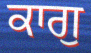
ਕਾਗੁ